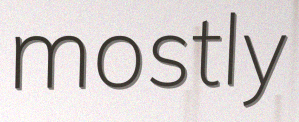
mostly